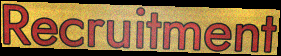
Recruitment